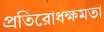
প্রতিরোধক্ষমতা